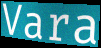
Vara